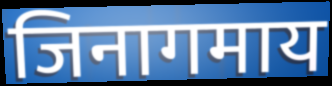
जिनागमाय